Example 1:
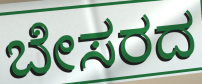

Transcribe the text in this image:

ಬೇಸರದ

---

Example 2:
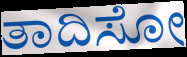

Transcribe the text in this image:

ತಾದಿಸೋ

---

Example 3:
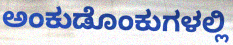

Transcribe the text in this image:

ಅಂಕುಡೊಂಕುಗಳಲ್ಲಿ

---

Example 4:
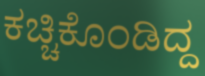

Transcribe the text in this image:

ಕಚ್ಚಿಕೊಂಡಿದ್ದ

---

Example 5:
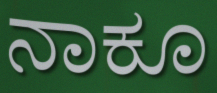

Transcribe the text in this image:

ನಾಕೂ